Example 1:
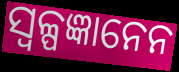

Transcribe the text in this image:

ସ୍ଵଳ୍ପଜ୍ଞାନେନ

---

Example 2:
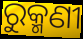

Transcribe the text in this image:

ରୁକ୍ମଣୀ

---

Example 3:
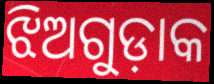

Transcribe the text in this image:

ଝିଅଗୁଡ଼ାକ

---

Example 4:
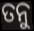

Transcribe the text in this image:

ତନୁ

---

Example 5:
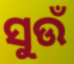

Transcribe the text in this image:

ସୁଉଁ